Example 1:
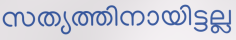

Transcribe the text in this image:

സത്യത്തിനായിട്ടല്ല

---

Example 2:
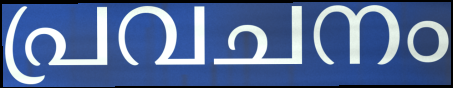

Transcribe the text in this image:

പ്രവചനം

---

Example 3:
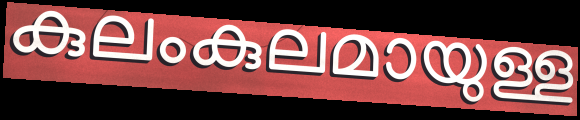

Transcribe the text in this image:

കുലംകുലമായുള്ള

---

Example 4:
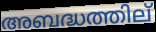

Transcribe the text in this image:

അബദ്ധത്തില്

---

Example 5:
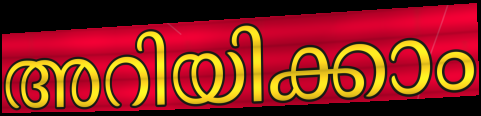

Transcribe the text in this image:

അറിയിക്കാം